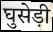
घुसेड़ी